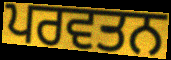
ਪਰਵਤਨ